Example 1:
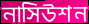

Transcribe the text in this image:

নাসিউশন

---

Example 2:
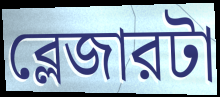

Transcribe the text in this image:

ব্লেজারটা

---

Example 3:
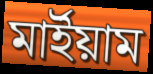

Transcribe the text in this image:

মার্ইয়াম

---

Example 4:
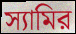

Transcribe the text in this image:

স্যামির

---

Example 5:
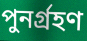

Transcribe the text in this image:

পুনর্গ্রহণ